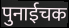
पुनाईचक